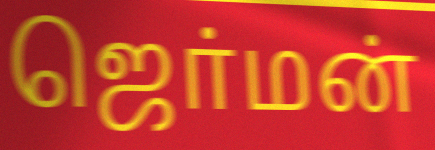
ஜெர்மன்